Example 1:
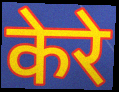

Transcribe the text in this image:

केरे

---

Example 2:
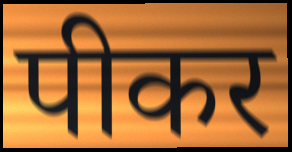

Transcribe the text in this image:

पीकर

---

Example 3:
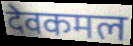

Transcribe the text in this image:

देवकमल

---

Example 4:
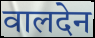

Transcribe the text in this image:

वालदेन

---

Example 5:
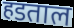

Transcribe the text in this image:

हडताल